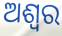
ଅଶ୍ୱର